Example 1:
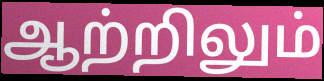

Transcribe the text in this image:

ஆற்றிலும்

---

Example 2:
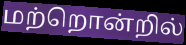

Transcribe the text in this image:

மற்றொன்றில்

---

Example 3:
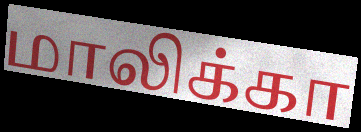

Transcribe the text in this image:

மாலிக்கா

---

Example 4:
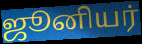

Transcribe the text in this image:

ஜூனியர்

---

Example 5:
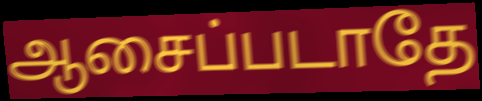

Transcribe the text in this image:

ஆசைப்படாதே